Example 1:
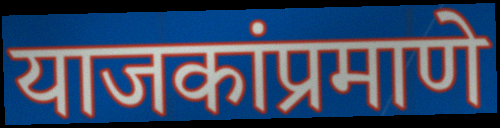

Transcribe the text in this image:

याजकांप्रमाणे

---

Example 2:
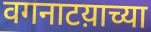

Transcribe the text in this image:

वगनाटय़ाच्या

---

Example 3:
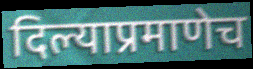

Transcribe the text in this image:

दिल्याप्रमाणेच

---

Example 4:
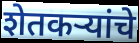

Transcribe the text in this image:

शेतकर्‍यांचे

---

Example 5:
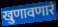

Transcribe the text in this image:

खुणावणारं